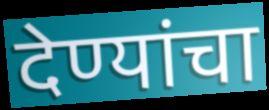
देण्यांचा